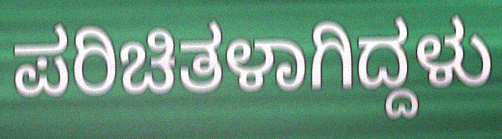
ಪರಿಚಿತಳಾಗಿದ್ದಳು